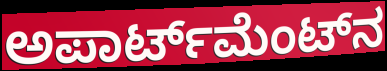
ಅಪಾರ್ಟ್‌ಮೆಂಟ್‌ನ